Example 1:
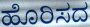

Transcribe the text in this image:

ಹೊರಿಸದ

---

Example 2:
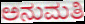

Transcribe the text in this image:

ಅನುಮತಿ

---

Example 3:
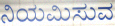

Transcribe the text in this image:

ನಿಯಮಿಸುವ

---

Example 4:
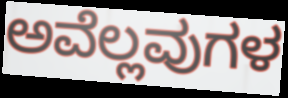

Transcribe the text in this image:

ಅವೆಲ್ಲವುಗಳ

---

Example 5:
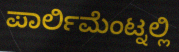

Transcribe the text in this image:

ಪಾರ್ಲಿಮೆಂಟ್ನಲ್ಲಿ